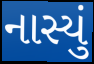
નાસ્યું